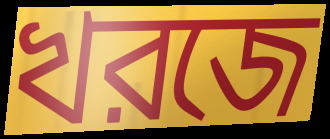
খরজে